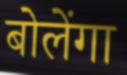
बोलेंगा